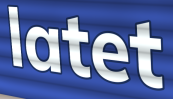
latet